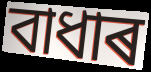
বাধাৰ